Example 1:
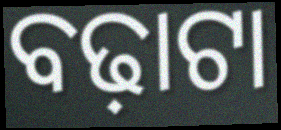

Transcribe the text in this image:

ବଢ଼ାଟା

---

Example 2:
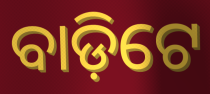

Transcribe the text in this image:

ବାଡ଼ିଟେ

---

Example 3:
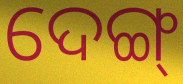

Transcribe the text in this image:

ଦେଙ୍ଗ୍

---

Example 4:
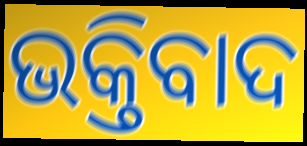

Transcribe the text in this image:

ଭକ୍ତିବାଦ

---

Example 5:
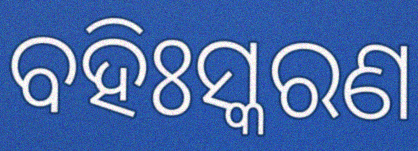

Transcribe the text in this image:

ବହିଃସ୍କରଣ